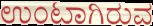
ಉಂಟಾಗಿರುವ